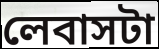
লেবাসটা